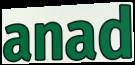
anad